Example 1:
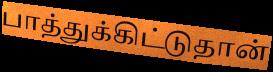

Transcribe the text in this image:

பாத்துக்கிட்டுதான்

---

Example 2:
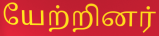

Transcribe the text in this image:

யேற்றினர்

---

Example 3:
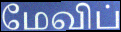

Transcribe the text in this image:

மேவிப்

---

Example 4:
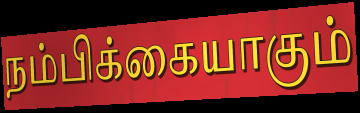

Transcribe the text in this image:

நம்பிக்கையாகும்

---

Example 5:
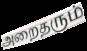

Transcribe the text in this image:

அறைதரும்